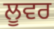
ਲੂਵਰ